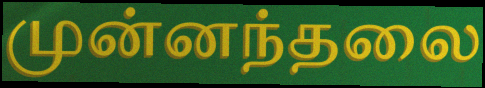
முன்னந்தலை